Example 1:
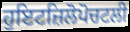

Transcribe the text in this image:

ਹੁਇਟਜ਼ਿਲੋਪੋਚਟਲੀ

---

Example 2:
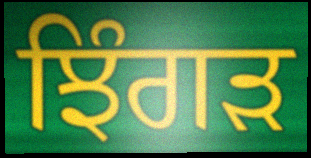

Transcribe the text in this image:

ਝਿੰਗੜ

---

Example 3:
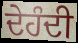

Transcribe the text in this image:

ਦੇਹੰਦੀ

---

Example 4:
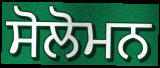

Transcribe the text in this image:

ਸੋਲੋਮਨ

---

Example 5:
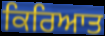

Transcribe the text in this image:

ਕਿਰਿਆਤ